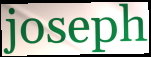
joseph